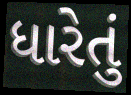
ધારેતું